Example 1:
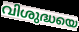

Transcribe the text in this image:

വിശുദ്ധയെ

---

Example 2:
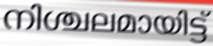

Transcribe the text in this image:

നിശ്ചലമായിട്ട്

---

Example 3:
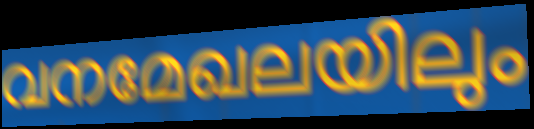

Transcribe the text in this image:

വനമേഖലയിലും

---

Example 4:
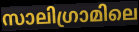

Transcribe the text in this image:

സാലിഗ്രാമിലെ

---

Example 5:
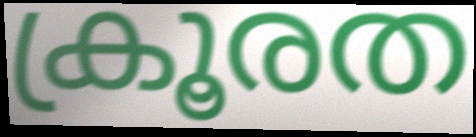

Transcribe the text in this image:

ക്രൂരത